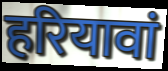
हरियावां